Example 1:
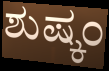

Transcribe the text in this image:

ಶುಷ್ಕಂ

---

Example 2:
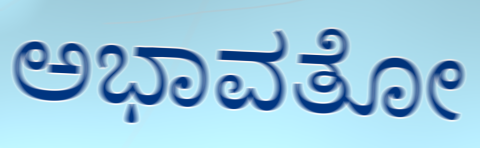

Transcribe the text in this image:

ಅಭಾವತೋ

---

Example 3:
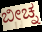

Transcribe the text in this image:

ಬೀಚ್ನ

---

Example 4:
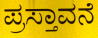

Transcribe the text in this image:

ಪ್ರಸ್ತಾವನೆ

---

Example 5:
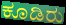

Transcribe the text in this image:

ಕೂಡಿರು